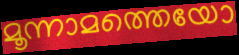
മൂന്നാമത്തെയോ